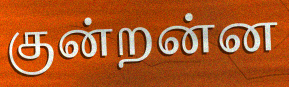
குன்றன்ன